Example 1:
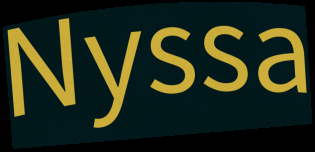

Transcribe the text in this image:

Nyssa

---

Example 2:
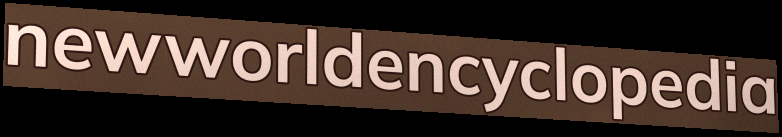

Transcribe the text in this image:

newworldencyclopedia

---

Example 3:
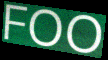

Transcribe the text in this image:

FOO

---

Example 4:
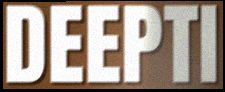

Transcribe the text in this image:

DEEPTI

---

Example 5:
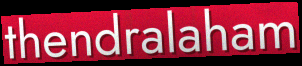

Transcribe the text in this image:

thendralaham